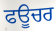
ਫਊਚਰ